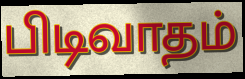
பிடிவாதம்